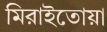
মিরাইতোয়া